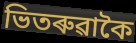
ভিতৰুৱাকৈ